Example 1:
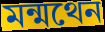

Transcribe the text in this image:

মন্মথেন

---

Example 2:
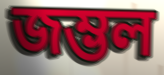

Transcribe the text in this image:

জম্ভল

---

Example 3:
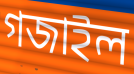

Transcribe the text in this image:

গজাইল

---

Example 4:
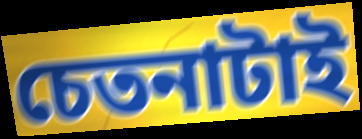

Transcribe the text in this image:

চেতনাটাই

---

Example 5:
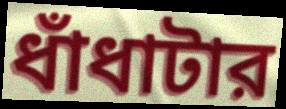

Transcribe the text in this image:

ধাঁধাটার